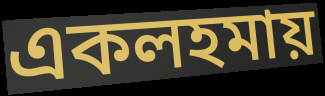
একলহমায়